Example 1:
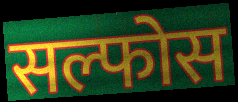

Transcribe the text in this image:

सल्फोस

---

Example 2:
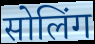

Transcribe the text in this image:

सोलिंग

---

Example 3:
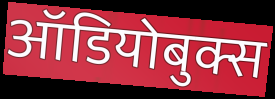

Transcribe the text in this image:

ऑडियोबुक्स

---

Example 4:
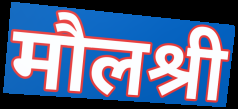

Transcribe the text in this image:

मौलश्री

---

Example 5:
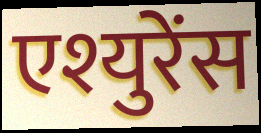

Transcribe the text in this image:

एश्युरेंस